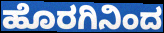
ಹೊರಗಿನಿಂದ